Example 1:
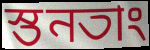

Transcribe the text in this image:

স্তনতাং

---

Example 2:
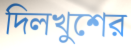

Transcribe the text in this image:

দিলখুশের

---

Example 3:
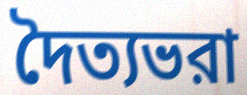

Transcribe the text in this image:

দৈত্যভরা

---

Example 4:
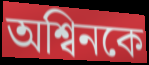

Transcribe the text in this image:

অশ্বিনকে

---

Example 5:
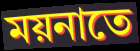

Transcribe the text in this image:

ময়নাতে